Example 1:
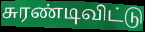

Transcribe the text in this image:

சுரண்டிவிட்டு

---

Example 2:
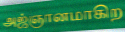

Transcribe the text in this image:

அஜ்ஞானமாகிற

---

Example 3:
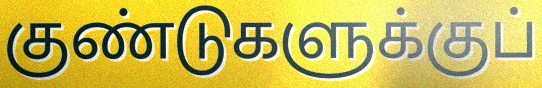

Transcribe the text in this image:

குண்டுகளுக்குப்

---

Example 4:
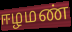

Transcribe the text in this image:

ஈழமண்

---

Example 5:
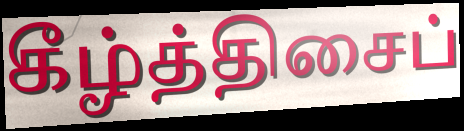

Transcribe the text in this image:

கீழ்த்திசைப்